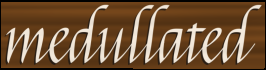
medullated